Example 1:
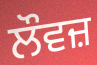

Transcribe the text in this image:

ਲੌਵਜ਼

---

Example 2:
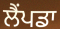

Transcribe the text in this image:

ਲੈਂਪਡਾ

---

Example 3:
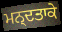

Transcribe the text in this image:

ਮਨ੍ਦਤਾਕੇ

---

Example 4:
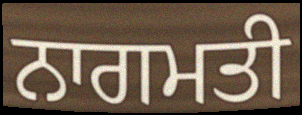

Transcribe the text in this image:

ਨਾਗਮਤੀ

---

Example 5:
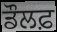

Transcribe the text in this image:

ਡੌਲਫ਼